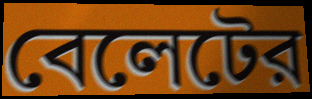
বেলেটের